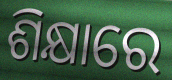
ଶିକ୍ଷାରେ